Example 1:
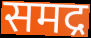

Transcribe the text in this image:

समद्र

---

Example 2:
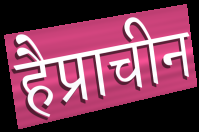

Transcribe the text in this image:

हैप्राचीन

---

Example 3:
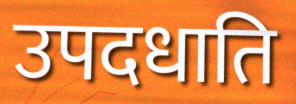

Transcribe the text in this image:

उपदधाति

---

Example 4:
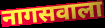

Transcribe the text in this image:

नागसवाला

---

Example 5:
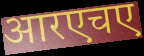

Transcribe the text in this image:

आरएचए